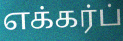
எக்கர்ப்